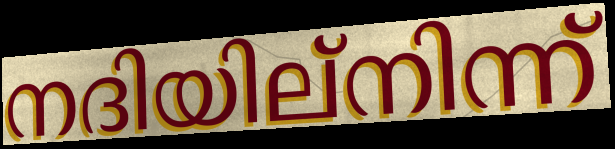
നദിയില്നിന്ന്